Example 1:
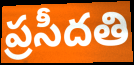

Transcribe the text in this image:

ప్రసీదతి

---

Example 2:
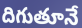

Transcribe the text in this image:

దిగుతూనే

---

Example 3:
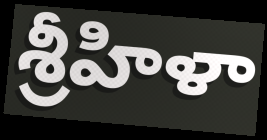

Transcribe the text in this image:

శ్రీహిళా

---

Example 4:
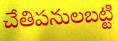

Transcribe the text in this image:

చేతిపనులబట్టి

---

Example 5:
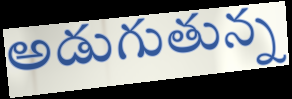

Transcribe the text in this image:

అడుగుతున్న